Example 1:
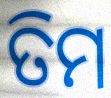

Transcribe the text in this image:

ତିମ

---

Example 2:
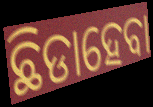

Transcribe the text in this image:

ଛିଡାହେବା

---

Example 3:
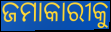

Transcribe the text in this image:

ଜମାକାରୀକୁ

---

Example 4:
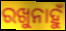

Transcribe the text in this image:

ରଖୁନାହୁଁ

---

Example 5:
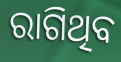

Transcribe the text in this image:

ରାଗିଥିବ